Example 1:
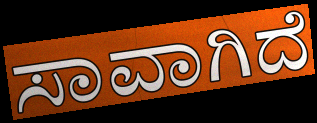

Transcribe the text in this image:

ಸಾವಾಗಿದೆ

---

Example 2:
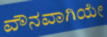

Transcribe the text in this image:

ವೌನವಾಗಿಯೇ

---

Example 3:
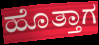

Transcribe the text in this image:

ಹೊತ್ತಾಗ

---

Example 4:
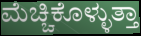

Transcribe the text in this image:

ಮೆಚ್ಚಿಕೊಳ್ಳುತ್ತಾ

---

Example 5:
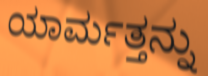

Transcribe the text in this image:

ಯಾರ್ಮತ್ತನ್ನು